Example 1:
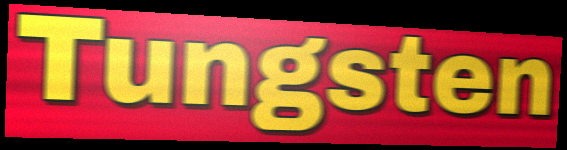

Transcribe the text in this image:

Tungsten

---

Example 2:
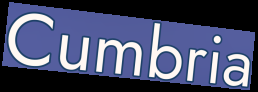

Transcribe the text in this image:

Cumbria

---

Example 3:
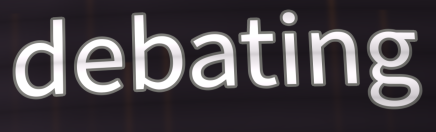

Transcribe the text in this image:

debating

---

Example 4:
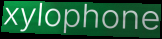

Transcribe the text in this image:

xylophone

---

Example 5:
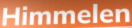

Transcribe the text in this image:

Himmelen